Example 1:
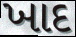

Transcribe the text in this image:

ખાદ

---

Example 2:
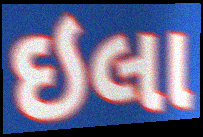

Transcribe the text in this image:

ઇલા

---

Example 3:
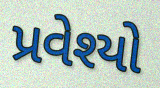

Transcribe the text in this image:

પ્રવેશ્યો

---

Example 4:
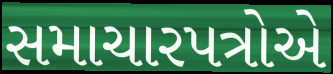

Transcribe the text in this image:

સમાચારપત્રોએ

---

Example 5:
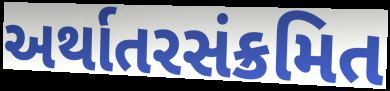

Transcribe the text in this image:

અર્થાતરસંક્રમિત